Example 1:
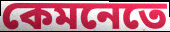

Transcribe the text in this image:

কেমনেতে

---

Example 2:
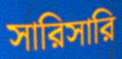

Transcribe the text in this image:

সারিসারি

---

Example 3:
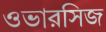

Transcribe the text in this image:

ওভারসিজ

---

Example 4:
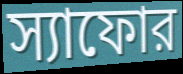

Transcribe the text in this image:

স্যাফোর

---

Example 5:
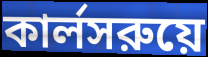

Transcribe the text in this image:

কার্লসরুয়ে